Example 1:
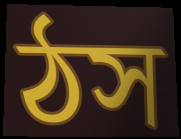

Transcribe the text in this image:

ঠস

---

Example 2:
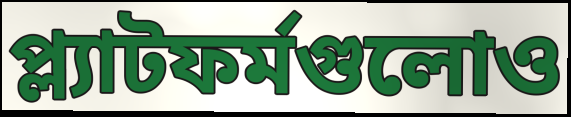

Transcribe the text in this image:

প্ল্যাটফর্মগুলোও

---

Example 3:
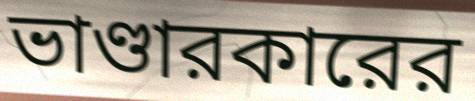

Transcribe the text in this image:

ভাণ্ডারকারের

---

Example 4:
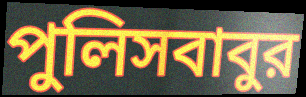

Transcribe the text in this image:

পুলিসবাবুর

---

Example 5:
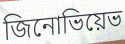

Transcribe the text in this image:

জিনোভিয়েভ